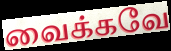
வைக்கவே